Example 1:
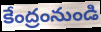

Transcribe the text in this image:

కేంద్రంనుండి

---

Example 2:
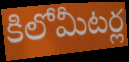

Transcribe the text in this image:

కిలోమీటర్ల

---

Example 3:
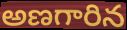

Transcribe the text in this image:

అణగారిన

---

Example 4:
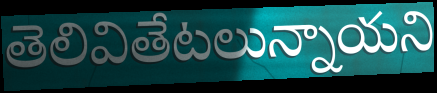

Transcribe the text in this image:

తెలివితేటలున్నాయని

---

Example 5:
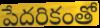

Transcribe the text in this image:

పేదరికంతో